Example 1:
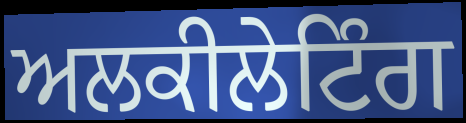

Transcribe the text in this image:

ਅਲਕੀਲੇਟਿੰਗ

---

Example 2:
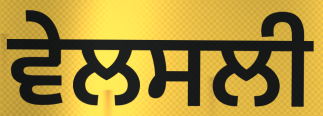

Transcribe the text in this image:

ਵੇਲਸਲੀ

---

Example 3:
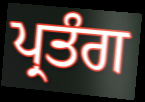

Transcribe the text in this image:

ਪ੍ਰਤੰਗ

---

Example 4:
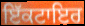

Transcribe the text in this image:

ਇੱਕਟਾਇਰ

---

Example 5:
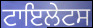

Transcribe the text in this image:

ਟਾਇਲੇਟਸ